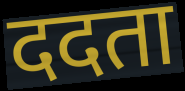
ददता